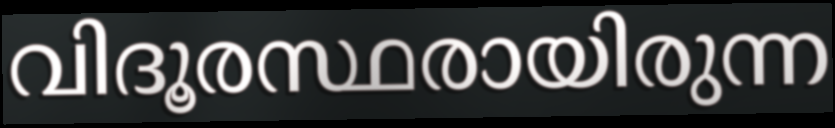
വിദൂരസ്ഥരായിരുന്ന